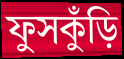
ফুসকুঁড়ি